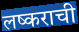
लष्कराची